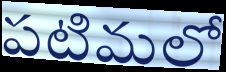
పటిమలో